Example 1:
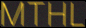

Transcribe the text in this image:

MTHL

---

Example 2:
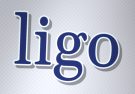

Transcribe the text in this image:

ligo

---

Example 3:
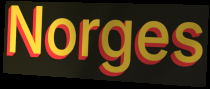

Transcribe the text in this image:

Norges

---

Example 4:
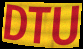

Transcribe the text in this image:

DTU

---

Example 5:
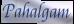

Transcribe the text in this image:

Pahalgam